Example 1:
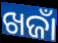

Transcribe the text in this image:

ଖଜାଁ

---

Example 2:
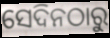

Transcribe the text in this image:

ସେଦିନଠାରୁ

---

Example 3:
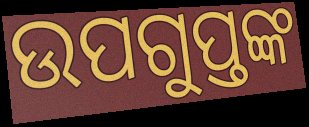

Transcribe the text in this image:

ଉପଗୁପ୍ତଙ୍କ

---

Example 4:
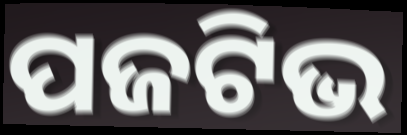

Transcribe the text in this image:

ପଜଟିଭ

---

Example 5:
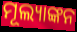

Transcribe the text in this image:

ମୂଲ୍ୟାଙ୍କନ